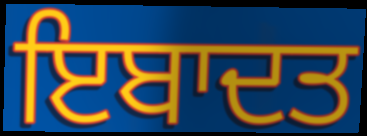
ਇਬਾਦਤ